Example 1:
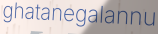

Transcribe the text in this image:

ghatanegalannu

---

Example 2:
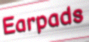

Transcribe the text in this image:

Earpads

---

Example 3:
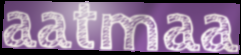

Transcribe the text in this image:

aatmaa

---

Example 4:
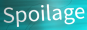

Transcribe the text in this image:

Spoilage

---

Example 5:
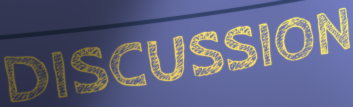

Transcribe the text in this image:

DISCUSSION